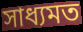
সাধ্যমত